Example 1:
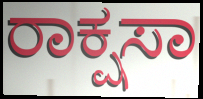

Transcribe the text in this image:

ರಾಕ್ಷಸಾ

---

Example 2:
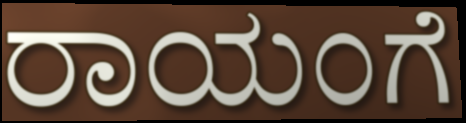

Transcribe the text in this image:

ರಾಯಂಗೆ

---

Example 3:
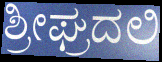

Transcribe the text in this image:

ಶ್ರೀಘ್ರದಲಿ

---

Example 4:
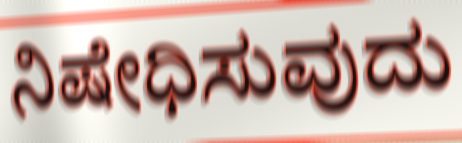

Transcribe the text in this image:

ನಿಷೇಧಿಸುವುದು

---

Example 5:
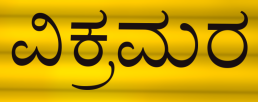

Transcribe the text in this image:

ವಿಕ್ರಮರ